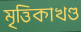
মৃত্তিকাখণ্ড